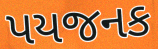
પયજનક